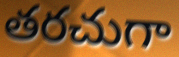
తరచుగా